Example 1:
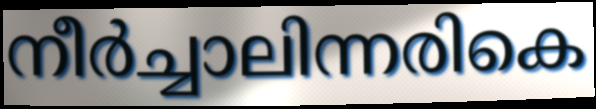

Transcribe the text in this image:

നീർച്ചാലിന്നരികെ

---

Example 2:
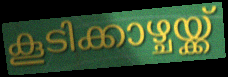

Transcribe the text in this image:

കൂടിക്കാഴ്ചയ്ക്ക്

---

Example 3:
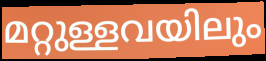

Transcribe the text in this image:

മറ്റുള്ളവയിലും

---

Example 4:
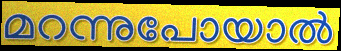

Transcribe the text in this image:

മറന്നുപോയാൽ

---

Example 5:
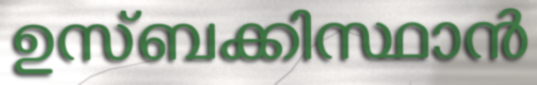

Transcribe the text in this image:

ഉസ്ബക്കിസ്ഥാൻ